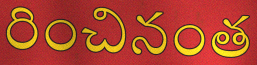
రించినంత